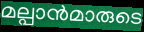
മല്പാൻമാരുടെ